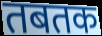
तबतक